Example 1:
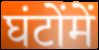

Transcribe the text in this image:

घंटोंमें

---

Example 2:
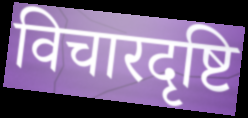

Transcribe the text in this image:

विचारदृष्टि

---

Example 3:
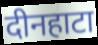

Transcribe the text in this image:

दीनहाटा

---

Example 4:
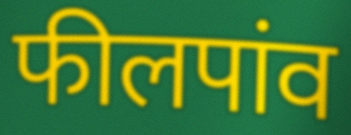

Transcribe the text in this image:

फीलपांव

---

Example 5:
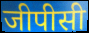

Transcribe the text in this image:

जीपीसी